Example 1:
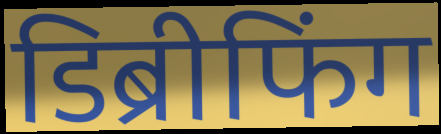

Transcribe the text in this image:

डिब्रीफिंग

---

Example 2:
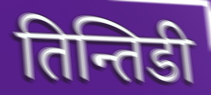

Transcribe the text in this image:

तिन्तिडी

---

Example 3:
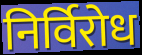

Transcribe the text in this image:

निर्विरोध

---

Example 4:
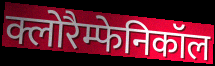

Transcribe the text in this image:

क्लोरैम्फेनिकॉल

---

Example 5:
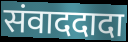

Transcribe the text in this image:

संवाददादा